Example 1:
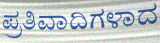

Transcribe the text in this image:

ಪ್ರತಿವಾದಿಗಳಾದ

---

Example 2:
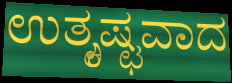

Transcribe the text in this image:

ಉತ್ಕೃಷ್ಟವಾದ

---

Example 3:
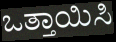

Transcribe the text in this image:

ಒತ್ತಾಯಿಸಿ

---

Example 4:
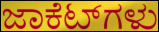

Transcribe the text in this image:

ಜಾಕೆಟ್‌ಗಳು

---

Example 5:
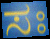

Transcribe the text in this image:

ಸಃ